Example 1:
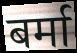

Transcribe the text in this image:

बर्मा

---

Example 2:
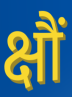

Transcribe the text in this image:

क्षौं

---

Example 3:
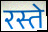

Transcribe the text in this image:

रस्ते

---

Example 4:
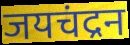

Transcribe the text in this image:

जयचंद्रन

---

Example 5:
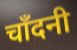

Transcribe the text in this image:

चाँदनी